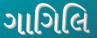
ગાગિલિ